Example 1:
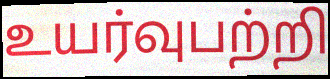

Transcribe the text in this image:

உயர்வுபற்றி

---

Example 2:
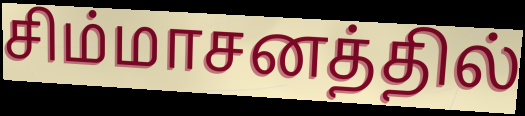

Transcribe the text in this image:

சிம்மாசனத்தில்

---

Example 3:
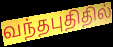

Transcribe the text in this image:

வந்தபுதிதில்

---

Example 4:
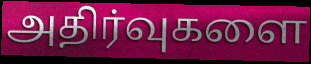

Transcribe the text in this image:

அதிர்வுகளை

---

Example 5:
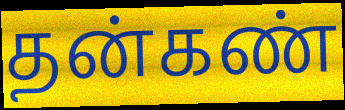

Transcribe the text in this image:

தன்கண்